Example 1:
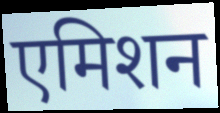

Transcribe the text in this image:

एमिशन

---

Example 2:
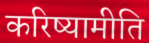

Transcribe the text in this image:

करिष्यामीति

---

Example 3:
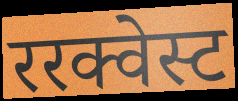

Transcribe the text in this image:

ररक्वेस्ट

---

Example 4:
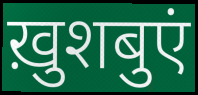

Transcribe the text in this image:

ख़ुशबुएं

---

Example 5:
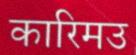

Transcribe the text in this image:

कारिमउ